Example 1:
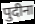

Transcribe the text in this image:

पुदीना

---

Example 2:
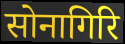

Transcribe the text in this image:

सोनागिरि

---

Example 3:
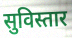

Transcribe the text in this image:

सुविस्तार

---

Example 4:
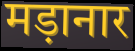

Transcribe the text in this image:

मड़ानार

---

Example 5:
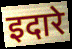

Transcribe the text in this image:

इदारे